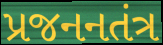
પ્રજનનતંત્ર